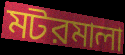
মটরমালা